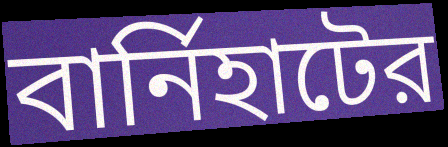
বার্নিহাটের